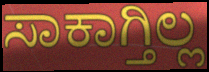
ಸಾಕಾಗ್ತಿಲ್ಲ